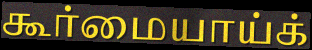
கூர்மையாய்க்